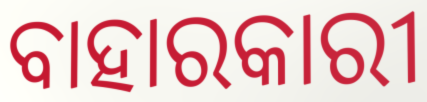
ବାହାରକାରୀ